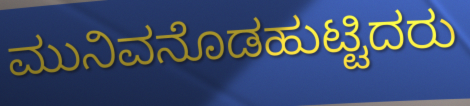
ಮುನಿವನೊಡಹುಟ್ಟಿದರು